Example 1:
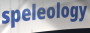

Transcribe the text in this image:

speleology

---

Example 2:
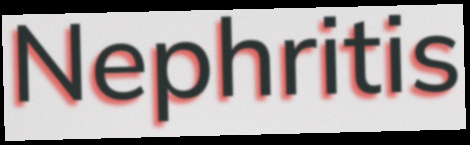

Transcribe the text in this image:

Nephritis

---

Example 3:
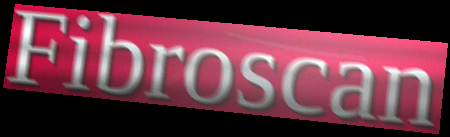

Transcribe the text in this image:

Fibroscan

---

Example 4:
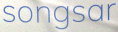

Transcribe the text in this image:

songsar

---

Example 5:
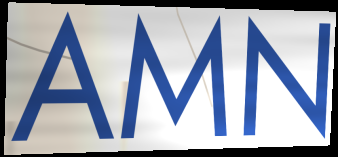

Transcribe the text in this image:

AMN